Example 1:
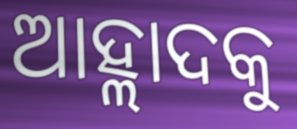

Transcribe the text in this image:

ଆହ୍ଲାଦକୁ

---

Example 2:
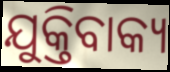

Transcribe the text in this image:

ଯୁକ୍ତିବାକ୍ୟ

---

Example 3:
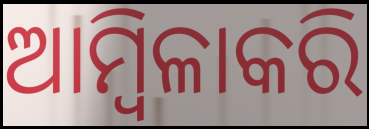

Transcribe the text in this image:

ଆମ୍ବିଳାକରି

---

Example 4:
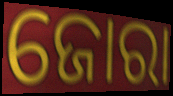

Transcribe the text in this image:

ଜୋରା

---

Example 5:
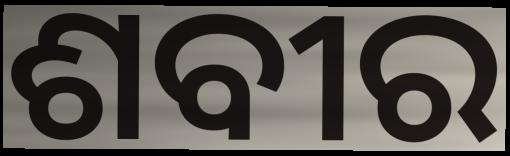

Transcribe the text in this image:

ଶବୀର